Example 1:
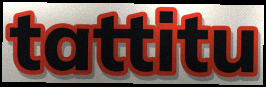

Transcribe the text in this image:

tattitu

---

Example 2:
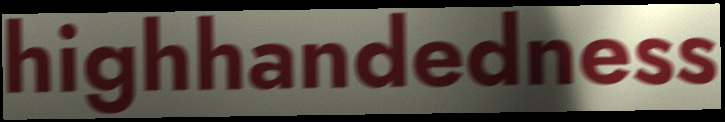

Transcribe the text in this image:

highhandedness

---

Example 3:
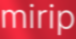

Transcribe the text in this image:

mirip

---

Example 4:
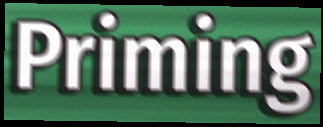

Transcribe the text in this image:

Priming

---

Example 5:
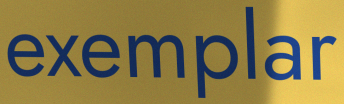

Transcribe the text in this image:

exemplar